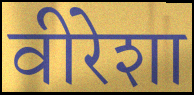
वीरेशा